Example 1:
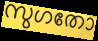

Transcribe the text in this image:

സുഗതോ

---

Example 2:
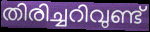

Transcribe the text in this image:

തിരിച്ചറിവുണ്ട്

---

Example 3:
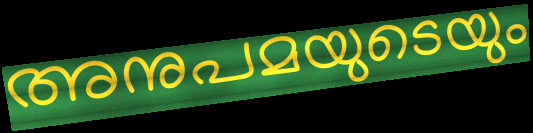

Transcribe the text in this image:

അനുപമയുടെയും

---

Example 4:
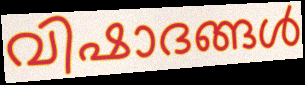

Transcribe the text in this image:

വിഷാദങ്ങൾ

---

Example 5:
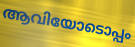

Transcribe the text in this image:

ആവിയോടൊപ്പം